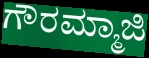
ಗೌರಮ್ಮಾಜಿ